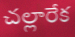
చల్లారేక